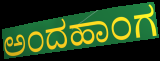
ಅಂದಹಾಂಗ